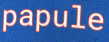
papule